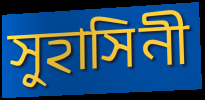
সুহাসিনী